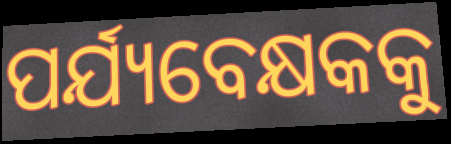
ପର୍ଯ୍ୟବେକ୍ଷକକୁ